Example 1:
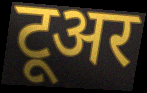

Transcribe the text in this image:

टूअर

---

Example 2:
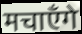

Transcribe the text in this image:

मचाएँगे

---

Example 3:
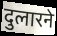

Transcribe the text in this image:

दुलारने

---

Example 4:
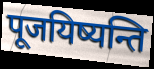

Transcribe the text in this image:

पूजयिष्यन्ति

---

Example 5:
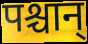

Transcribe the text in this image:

पश्चान्